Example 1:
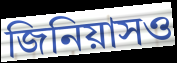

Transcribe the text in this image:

জিনিয়াসও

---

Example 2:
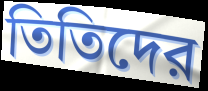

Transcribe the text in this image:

তিতিদের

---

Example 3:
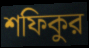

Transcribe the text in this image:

শফিকুর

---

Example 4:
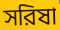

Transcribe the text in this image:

সরিষা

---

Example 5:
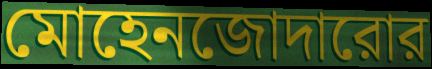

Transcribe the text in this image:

মোহেনজোদারোর